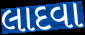
લાદવા